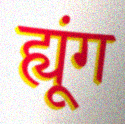
ह्यूंग